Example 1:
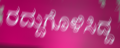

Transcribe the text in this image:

ರದ್ದುಗೊಳಿಸಿದ್ದ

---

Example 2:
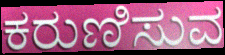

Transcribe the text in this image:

ಕರುಣಿಸುವ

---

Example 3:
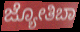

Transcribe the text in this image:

ಜ್ಯೋತಿಬಾ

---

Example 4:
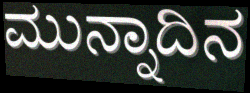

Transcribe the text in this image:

ಮುನ್ನಾದಿನ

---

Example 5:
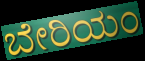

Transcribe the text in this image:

ಬೇರಿಯಂ